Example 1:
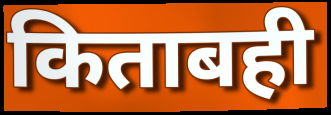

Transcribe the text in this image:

किताबही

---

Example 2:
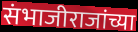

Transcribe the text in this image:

संभाजीराजांच्या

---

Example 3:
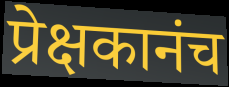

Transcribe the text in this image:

प्रेक्षकानंच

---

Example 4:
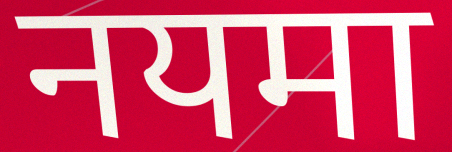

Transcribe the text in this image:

नयमा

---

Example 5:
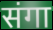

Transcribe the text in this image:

संगा